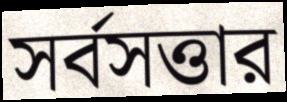
সর্বসত্তার